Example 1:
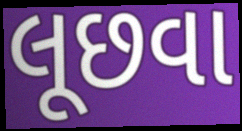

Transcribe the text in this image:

લૂછવા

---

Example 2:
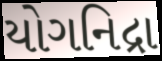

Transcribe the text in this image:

યોગનિદ્રા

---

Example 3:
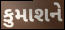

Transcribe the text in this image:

કુમાશને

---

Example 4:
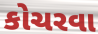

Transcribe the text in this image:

કોચરવા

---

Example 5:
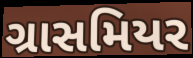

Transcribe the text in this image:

ગ્રાસમિયર